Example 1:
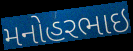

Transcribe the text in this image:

મનોહરભાઇ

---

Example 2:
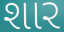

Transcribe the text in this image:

શાર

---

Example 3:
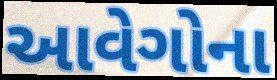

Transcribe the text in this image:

આવેગોના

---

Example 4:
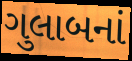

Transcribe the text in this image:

ગુલાબનાં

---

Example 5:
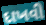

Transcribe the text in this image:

દાખવી